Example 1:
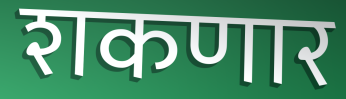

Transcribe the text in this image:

शकणार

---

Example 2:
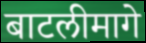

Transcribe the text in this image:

बाटलीमागे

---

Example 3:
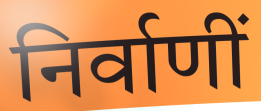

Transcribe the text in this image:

निर्वाणीं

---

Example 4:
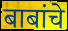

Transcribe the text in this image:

बाबांचे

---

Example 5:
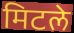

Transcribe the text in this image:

मिटले